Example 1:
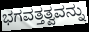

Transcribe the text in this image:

ಭಗವತ್ತತ್ವವನ್ನು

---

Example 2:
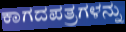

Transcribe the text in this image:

ಕಾಗದಪತ್ರಗಳನ್ನು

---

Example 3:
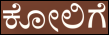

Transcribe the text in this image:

ಕೋಲಿಗೆ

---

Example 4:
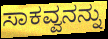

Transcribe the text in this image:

ಸಾಕವ್ವನನ್ನು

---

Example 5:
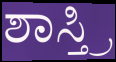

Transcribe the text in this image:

ಶಾಸ್ತ್ರಿ